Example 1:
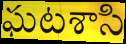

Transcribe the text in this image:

ఘటశాసి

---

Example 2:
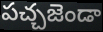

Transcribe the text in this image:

పచ్చజెండా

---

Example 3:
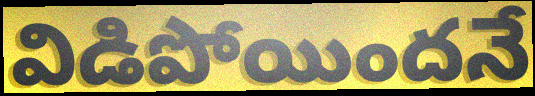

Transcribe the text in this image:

విడిపోయిందనే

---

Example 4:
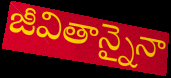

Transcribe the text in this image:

జీవితాన్నైనా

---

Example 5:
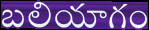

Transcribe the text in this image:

బలియాగం